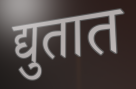
द्युतात